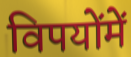
विपयोंमें